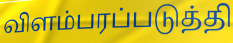
விளம்பரப்படுத்தி